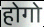
होगो